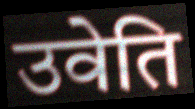
उवेति